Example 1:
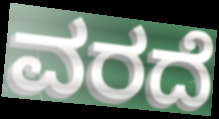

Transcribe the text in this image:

ವರದೆ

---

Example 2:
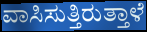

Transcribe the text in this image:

ವಾಸಿಸುತ್ತಿರುತ್ತಾಳೆ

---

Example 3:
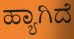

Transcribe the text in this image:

ಹ್ಯಾಗಿದೆ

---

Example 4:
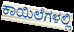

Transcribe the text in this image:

ಕಾಯಿಲೆಗಳಲ್ಲಿ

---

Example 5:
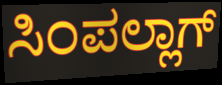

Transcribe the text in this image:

ಸಿಂಪಲ್ಲಾಗ್